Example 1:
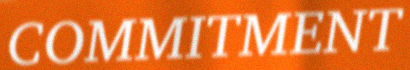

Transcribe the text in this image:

COMMITMENT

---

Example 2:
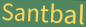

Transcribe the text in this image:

Santbal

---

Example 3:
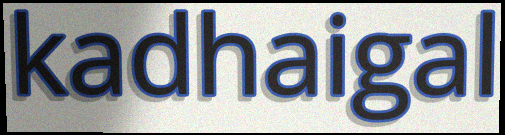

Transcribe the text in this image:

kadhaigal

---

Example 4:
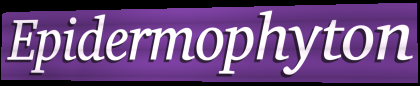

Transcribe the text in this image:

Epidermophyton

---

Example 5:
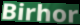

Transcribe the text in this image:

Birhor